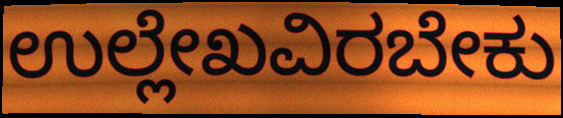
ಉಲ್ಲೇಖವಿರಬೇಕು